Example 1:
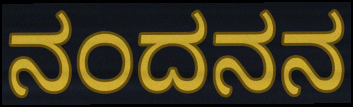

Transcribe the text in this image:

ನಂದನನ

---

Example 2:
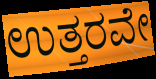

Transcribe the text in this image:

ಉತ್ತರವೇ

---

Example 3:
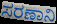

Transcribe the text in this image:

ಸರಣಾನಿ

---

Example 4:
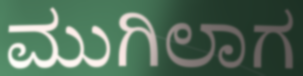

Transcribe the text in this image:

ಮುಗಿಲಾಗ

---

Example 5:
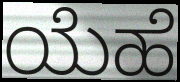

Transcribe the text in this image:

ಯೆಹೆ